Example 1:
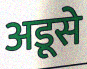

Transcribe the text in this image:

अडूसे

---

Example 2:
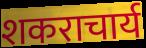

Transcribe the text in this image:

शकराचार्य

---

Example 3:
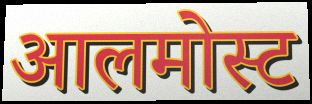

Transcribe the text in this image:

आलमोस्ट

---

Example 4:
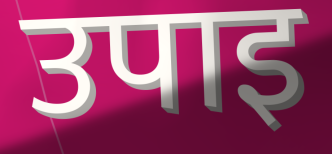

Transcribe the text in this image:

उपाइ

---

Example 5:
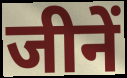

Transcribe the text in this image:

जीनें